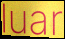
luar